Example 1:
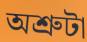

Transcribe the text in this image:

অশ্রুটা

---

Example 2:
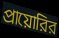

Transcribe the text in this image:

প্রায়োরির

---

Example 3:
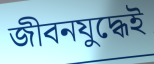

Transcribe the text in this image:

জীবনযুদ্ধেই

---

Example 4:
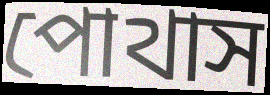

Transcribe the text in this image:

পোথাস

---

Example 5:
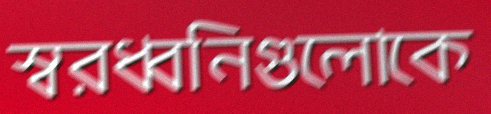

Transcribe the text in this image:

স্বরধ্বনিগুলোকে